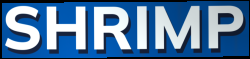
SHRIMP